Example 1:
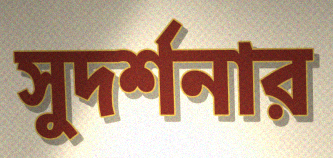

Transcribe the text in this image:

সুদর্শনার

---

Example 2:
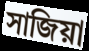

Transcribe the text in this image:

সাজিয়া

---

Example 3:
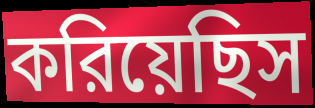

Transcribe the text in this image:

করিয়েছিস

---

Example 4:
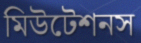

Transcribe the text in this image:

মিউটেশনস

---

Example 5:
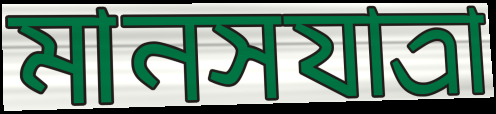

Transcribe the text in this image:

মানসযাত্রা